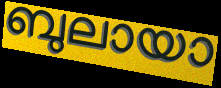
ബുലായാ